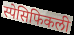
स्पेसिफिकली